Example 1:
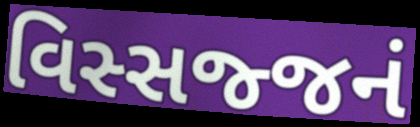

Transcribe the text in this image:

વિસ્સજ્જનં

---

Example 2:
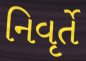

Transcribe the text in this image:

નિવૃર્તે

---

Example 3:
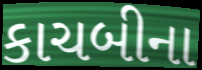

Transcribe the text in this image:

કાચબીના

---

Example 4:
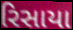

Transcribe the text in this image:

રિસાયા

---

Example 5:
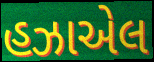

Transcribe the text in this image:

હઝાએલ